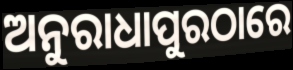
ଅନୁରାଧାପୁରଠାରେ